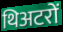
थिअटरों